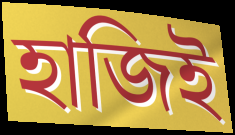
হাজিই